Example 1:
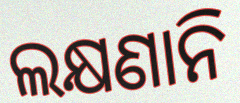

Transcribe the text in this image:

ଲକ୍ଷଣାନି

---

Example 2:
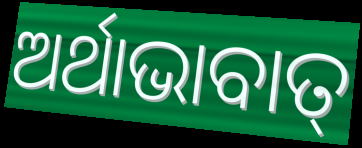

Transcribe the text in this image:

ଅର୍ଥାଭାବାତ୍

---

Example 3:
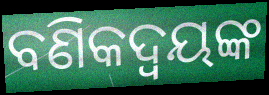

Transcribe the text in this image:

ବଣିକଦ୍ଵୟଙ୍କ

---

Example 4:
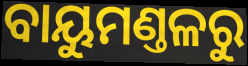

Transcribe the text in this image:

ବାୟୁମଣ୍ତଳରୁ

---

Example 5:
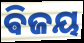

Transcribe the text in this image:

ଵିଜୟ